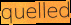
quelled